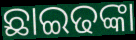
ଛାଇଢଙ୍କା